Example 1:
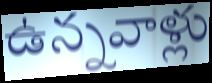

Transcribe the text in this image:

ఉన్నవాళ్లు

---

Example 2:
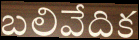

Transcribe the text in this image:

బలివేదిక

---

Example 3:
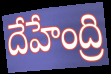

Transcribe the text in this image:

దేహేంద్రి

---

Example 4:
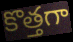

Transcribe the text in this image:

కొత్తగా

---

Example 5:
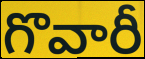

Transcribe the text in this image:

గొవారీ